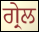
ਗ੍ਰੇਲ